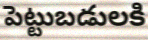
పెట్టుబడులకి